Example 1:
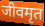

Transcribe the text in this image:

जीवमृत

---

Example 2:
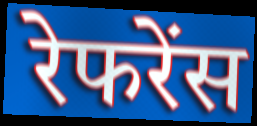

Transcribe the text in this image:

रेफरेंस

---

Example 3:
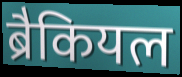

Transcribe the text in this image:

ब्रैकियल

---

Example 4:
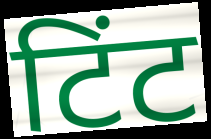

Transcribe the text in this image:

टिंट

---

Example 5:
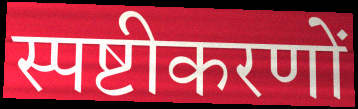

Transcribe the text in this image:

स्पष्टीकरणों